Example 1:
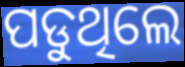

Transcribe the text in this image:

ପଡୁଥିଲେ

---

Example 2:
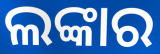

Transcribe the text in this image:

ଲଙ୍କାର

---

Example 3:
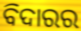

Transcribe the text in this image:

ବିଦାରର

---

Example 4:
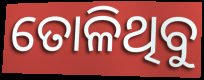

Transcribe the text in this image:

ତୋଳିଥିବୁ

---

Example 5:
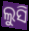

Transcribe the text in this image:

ଲୁସି